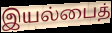
இயல்பைத்